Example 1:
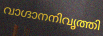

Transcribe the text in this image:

വാഗ്ദാനനിവൃത്തി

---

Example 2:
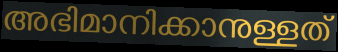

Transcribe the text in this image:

അഭിമാനിക്കാനുള്ളത്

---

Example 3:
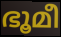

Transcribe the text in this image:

ഭൂമീ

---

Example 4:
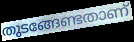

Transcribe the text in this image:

തുടങ്ങേണ്ടതാണ്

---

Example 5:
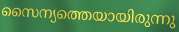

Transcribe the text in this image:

സൈന്യത്തെയായിരുന്നു